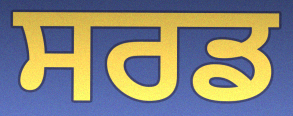
ਸਰਡ